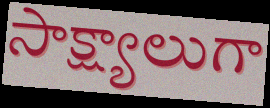
సాక్ష్యాలుగా